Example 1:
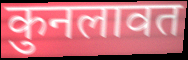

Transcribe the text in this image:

कुनलावत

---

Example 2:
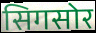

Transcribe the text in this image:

सिगसोर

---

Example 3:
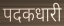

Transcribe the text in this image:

पदकधारी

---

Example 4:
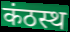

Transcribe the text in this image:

कंठस्थ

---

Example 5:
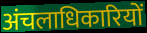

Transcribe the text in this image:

अंचलाधिकारियों